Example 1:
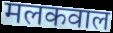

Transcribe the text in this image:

मलकवाल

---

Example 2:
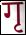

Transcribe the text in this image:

गृ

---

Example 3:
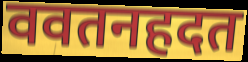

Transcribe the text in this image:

ववतनहदत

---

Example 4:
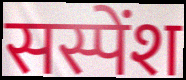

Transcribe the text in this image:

सस्पेंश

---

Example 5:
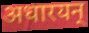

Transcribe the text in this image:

अधारयन्